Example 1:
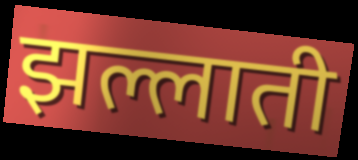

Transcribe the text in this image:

झल्लाती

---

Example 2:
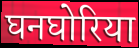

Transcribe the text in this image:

घनघोरिया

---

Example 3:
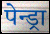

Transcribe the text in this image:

पेन्ड्रा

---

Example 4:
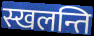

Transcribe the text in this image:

स्खलन्ति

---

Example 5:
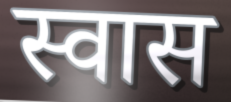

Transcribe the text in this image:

स्वास